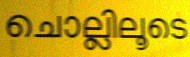
ചൊല്ലിലൂടെ